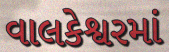
વાલકેશ્વરમાં